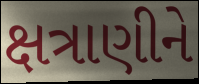
ક્ષત્રાણીને